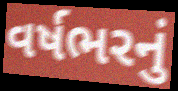
વર્ષભરનું